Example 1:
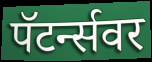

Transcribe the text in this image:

पॅटर्न्सवर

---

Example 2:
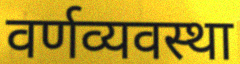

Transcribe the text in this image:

वर्णव्यवस्था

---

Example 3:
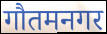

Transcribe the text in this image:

गौतमनगर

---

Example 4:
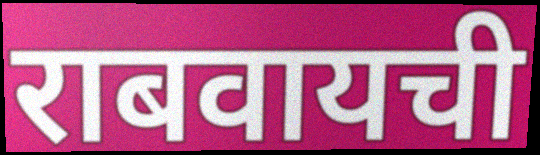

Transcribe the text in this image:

राबवायची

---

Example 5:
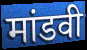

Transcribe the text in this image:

मांडवी